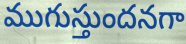
ముగుస్తుందనగా